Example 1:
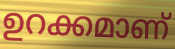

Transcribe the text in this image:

ഉറക്കമാണ്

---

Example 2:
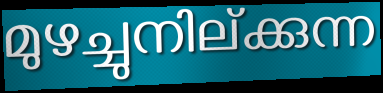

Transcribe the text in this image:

മുഴച്ചുനില്ക്കുന്ന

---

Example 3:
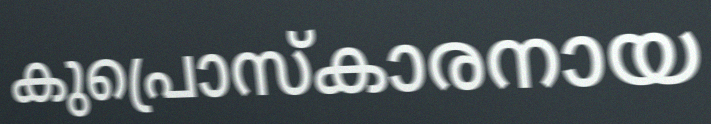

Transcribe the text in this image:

കുപ്രൊസ്കാരനായ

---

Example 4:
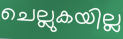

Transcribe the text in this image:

ചെല്ലുകയില്ല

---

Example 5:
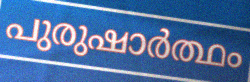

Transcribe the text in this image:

പുരുഷാർത്ഥം